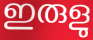
ഇരുളു